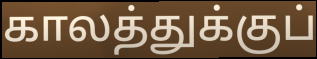
காலத்துக்குப்